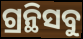
ଗ୍ରନ୍ଥିସବୁ